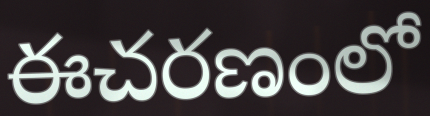
ఈచరణంలో